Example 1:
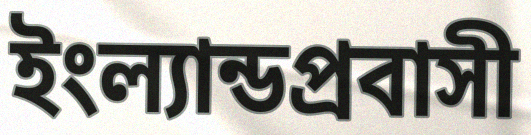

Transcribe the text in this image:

ইংল্যান্ডপ্রবাসী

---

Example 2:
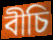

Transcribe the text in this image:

বীচি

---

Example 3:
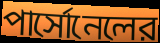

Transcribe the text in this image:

পার্সোনেলের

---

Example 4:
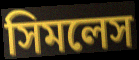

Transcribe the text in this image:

সিমলেস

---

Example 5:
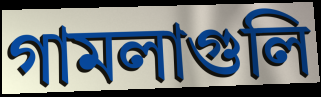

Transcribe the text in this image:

গামলাগুলি